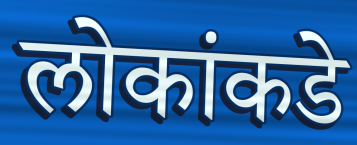
लोकांकडे